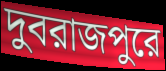
দুবরাজপুরে